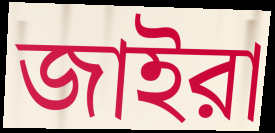
জাইরা